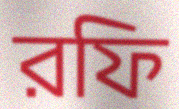
রফি